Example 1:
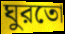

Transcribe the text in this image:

ঘুরতো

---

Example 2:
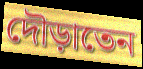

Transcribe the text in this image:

দৌড়াতেন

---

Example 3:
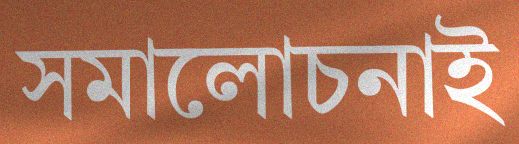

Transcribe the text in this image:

সমালোচনাই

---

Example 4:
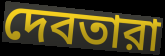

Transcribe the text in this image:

দেবতারা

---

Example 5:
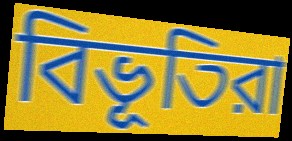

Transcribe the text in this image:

বিভূতিরা